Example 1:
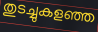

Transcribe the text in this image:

തുടച്ചുകളഞ്ഞ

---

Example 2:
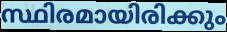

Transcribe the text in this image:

സ്ഥിരമായിരിക്കും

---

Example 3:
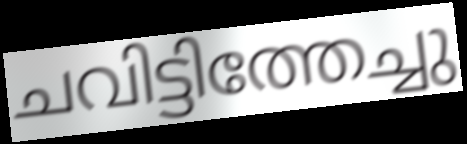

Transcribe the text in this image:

ചവിട്ടിത്തേച്ചു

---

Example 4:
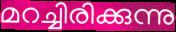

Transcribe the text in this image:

മറച്ചിരിക്കുന്നു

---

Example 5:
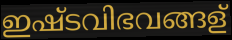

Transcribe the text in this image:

ഇഷ്ടവിഭവങ്ങള്